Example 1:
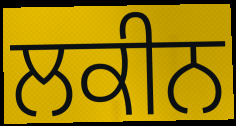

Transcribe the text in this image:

ਲਕੀਨ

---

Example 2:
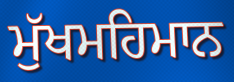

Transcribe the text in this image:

ਮੁੱਖਮਹਿਮਾਨ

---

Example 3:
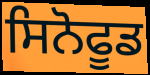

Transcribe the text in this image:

ਸਿਨੋਫੂਡ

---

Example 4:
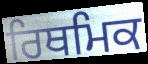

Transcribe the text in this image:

ਰਿਥਮਿਕ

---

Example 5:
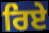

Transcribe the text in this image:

ਰਿਏ